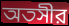
অতসীর